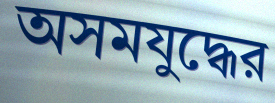
অসমযুদ্ধের